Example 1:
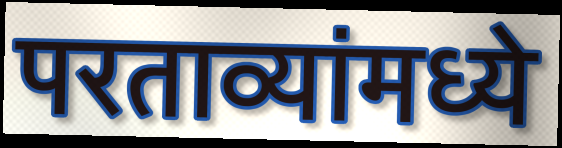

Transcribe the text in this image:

परताव्यांमध्ये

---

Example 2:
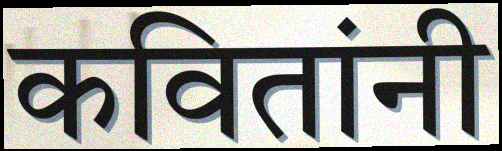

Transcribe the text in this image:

कवितांनी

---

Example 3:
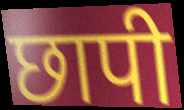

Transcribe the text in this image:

छापी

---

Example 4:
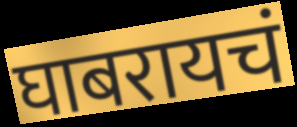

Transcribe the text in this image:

घाबरायचं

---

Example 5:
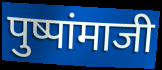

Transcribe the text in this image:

पुष्पांमाजी